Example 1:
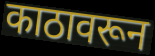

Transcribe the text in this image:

काठावरून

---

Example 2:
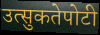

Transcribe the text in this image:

उत्सुकतेपोटी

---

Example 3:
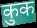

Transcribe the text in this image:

कुक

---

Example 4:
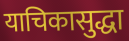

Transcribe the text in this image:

याचिकासुद्धा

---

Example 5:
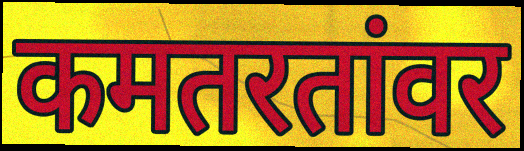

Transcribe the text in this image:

कमतरतांवर